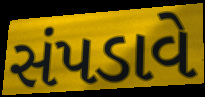
સંપડાવે